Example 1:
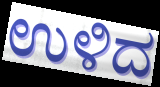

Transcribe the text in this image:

ಉಳಿದ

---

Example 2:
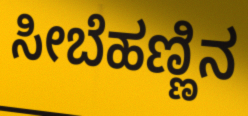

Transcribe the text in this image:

ಸೀಬೆಹಣ್ಣಿನ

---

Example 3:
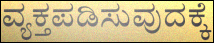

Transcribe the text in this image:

ವ್ಯಕ್ತಪಡಿಸುವುದಕ್ಕೆ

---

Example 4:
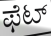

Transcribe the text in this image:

ಫೆಟ್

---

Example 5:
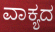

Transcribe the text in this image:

ವಾಕ್ಯದ